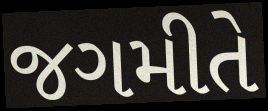
જગમીતે